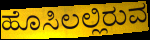
ಹೊಸಿಲಲ್ಲಿರುವ